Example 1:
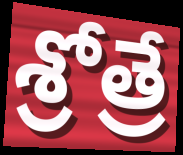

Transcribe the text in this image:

శ్రోత్రే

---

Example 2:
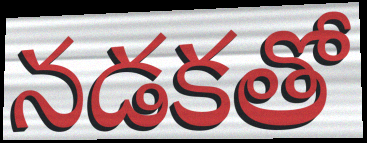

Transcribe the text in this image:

నడకతో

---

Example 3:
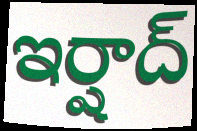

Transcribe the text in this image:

ఇర్షాద్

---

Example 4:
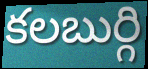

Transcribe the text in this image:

కలబుర్గి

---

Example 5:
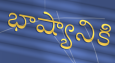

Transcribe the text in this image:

భాష్యానికి